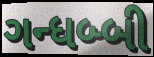
ગન્ધબ્બી